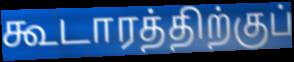
கூடாரத்திற்குப்